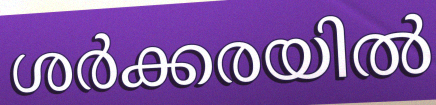
ശർക്കരയിൽ